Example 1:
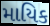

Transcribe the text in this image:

માયિક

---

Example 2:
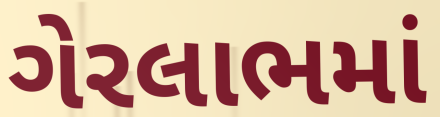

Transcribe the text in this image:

ગેરલાભમાં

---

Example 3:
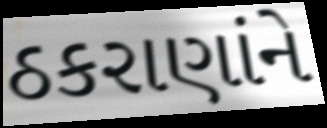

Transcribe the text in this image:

ઠકરાણાંને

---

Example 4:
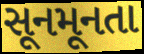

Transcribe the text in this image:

સૂનમૂનતા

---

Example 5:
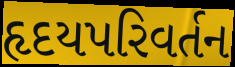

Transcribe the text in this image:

હૃદયપરિવર્તન